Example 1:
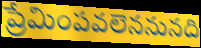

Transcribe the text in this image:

ప్రేమింపవలెననునది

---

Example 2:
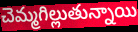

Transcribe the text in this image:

చెమ్మగిల్లుతున్నాయి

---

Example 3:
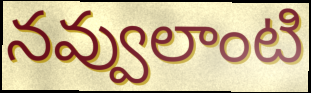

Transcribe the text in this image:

నవ్వులాంటి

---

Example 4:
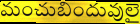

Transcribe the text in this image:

మంచుబిందువులై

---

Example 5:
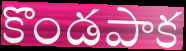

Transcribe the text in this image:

కొండపాక